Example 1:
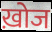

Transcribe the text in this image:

ख़ोज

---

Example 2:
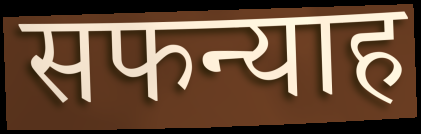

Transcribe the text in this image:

सफन्याह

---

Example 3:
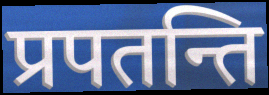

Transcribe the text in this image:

प्रपतन्ति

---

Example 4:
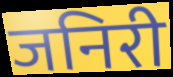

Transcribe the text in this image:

जनिरी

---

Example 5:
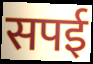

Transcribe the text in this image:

सपई